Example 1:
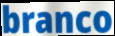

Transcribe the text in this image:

branco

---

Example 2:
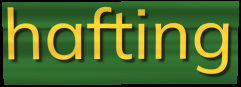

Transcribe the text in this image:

hafting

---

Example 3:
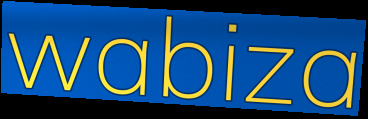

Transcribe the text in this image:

wabiza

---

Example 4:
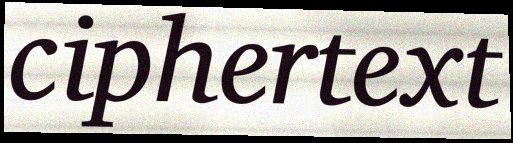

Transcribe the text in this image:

ciphertext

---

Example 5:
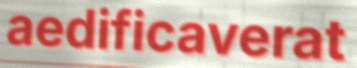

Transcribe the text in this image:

aedificaverat